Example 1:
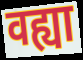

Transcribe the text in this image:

वह्या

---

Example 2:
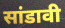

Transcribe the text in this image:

सांडावी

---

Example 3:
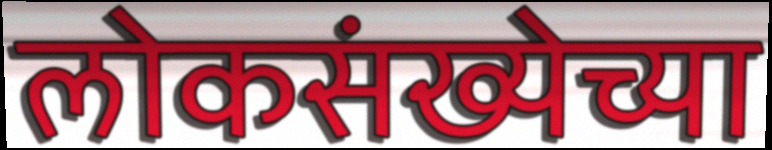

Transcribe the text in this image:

लोकसंख्येच्या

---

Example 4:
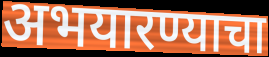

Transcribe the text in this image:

अभयारण्याचा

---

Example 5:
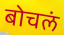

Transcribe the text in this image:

बोचलं